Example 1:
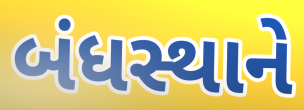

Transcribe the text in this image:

બંધસ્થાને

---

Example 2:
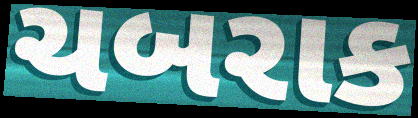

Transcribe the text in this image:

ચબરાક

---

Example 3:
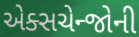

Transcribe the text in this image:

એક્સચેન્જોની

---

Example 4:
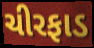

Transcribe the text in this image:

ચીરફાડ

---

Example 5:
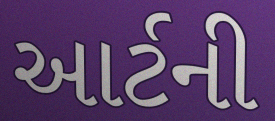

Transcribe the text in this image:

આર્ટની